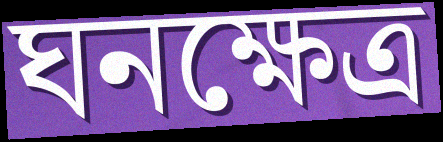
ঘনক্ষেত্র